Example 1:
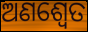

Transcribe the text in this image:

ଅଣଶ୍ୱେତ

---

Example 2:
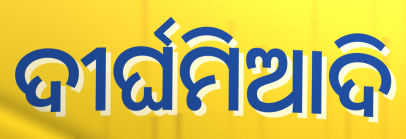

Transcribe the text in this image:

ଦୀର୍ଘମିଆଦି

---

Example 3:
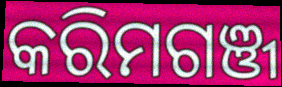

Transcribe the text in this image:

କରିମଗଞ୍ଜ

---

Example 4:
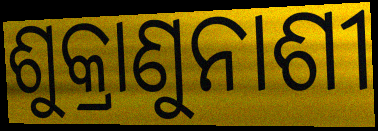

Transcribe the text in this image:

ଶୁକ୍ରାଣୁନାଶୀ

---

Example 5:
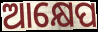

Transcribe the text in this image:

ଆକ୍ଷେପ